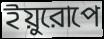
ইয়ুরোপে